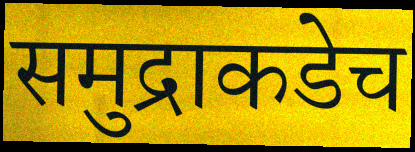
समुद्राकडेच